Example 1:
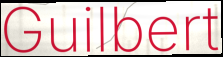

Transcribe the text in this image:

Guilbert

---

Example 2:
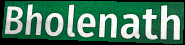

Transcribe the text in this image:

Bholenath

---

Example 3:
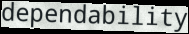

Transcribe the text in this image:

dependability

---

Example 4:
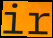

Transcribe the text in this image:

ir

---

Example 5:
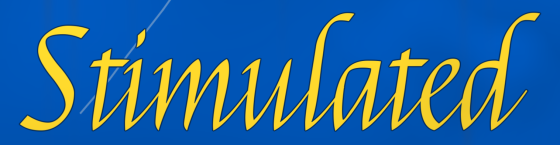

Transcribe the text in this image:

Stimulated